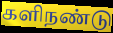
களிநண்டு